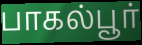
பாகல்பூர்